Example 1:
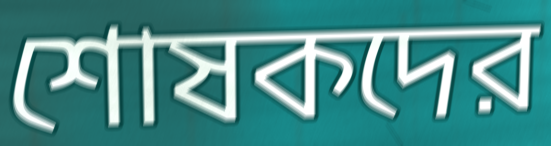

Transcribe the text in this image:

শোষকদের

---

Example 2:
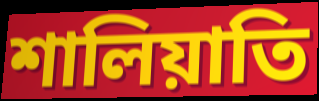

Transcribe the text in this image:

শালিয়াতি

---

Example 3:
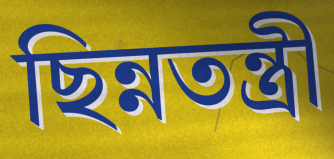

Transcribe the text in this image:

ছিন্নতন্ত্রী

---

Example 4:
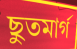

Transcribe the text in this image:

ছুতমার্গ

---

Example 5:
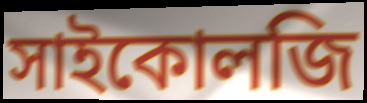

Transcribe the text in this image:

সাইকোলজি